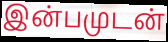
இன்பமுடன்